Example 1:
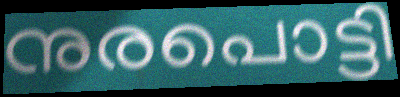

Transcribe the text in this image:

നുരപൊട്ടി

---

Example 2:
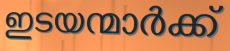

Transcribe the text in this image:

ഇടയന്മാർക്ക്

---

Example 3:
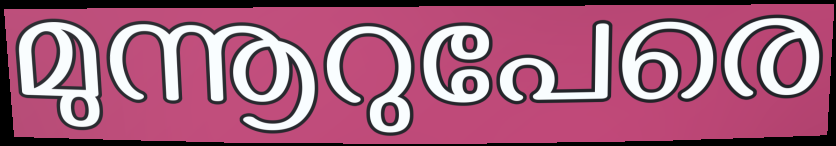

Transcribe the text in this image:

മുന്നൂറുപേരെ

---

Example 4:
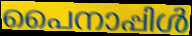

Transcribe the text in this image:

പൈനാപ്പിൾ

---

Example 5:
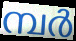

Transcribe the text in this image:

മ്പർ